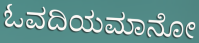
ಓವದಿಯಮಾನೋ